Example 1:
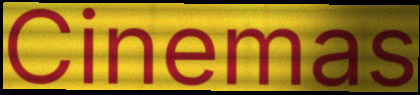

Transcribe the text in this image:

Cinemas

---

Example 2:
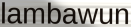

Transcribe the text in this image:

lambawun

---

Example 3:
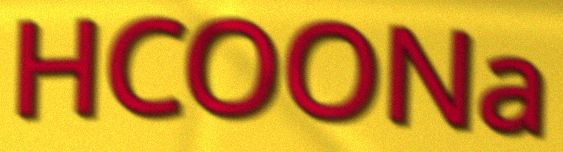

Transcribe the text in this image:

HCOONa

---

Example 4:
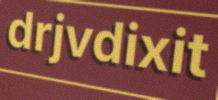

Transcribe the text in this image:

drjvdixit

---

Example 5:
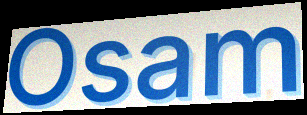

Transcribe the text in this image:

Osam